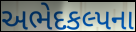
અભેદકલ્પના